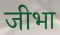
जीभा